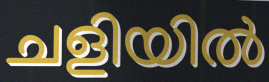
ചളിയിൽ